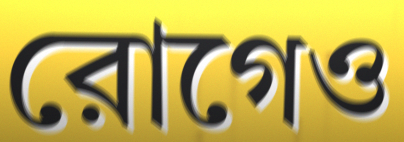
রোগেও